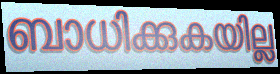
ബാധിക്കുകയില്ല